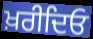
ਖ਼ਰੀਦਿਓ